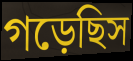
গড়েছিস